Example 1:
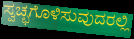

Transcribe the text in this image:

ಸ್ವಚ್ಛಗೊಳಿಸುವುದರಲ್ಲಿ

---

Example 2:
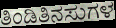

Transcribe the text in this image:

ತಿಂಡಿತಿನಸುಗಳ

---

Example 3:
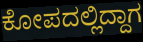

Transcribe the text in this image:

ಕೋಪದಲ್ಲಿದ್ದಾಗ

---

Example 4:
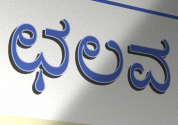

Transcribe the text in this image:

ಛಲವ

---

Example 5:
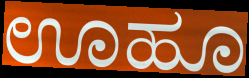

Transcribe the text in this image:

ಊಹೂ